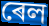
ৰেল